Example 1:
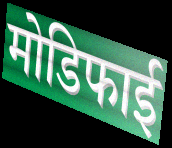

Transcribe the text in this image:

मोडिफाई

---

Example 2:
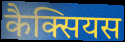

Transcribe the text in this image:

कैक्सियस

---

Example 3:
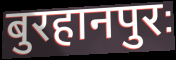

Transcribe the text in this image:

बुरहानपुरः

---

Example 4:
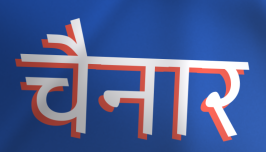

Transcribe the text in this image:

चैनार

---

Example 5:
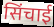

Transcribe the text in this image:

सिंचाई